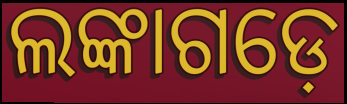
ଲଙ୍କାଗଡ଼େ